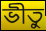
ভীতু